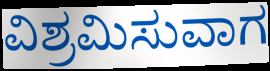
ವಿಶ್ರಮಿಸುವಾಗ